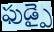
ఫుడ్పై